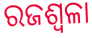
ରଜଶ୍ୱଳା